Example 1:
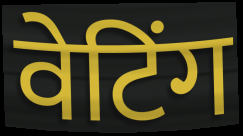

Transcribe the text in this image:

वेटिंग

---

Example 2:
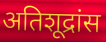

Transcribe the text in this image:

अतिशूद्रांस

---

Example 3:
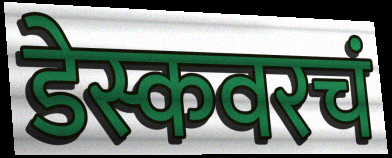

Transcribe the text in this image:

डेस्कवरचं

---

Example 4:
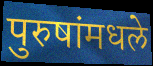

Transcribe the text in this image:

पुरुषांमधले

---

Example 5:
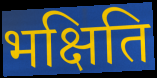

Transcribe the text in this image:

भक्षिति